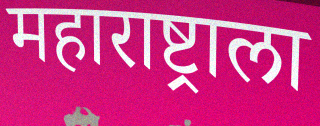
महाराष्ट्राला